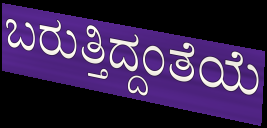
ಬರುತ್ತಿದ್ದಂತೆಯೆ